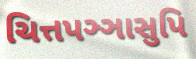
ચિત્તપઞ્ઞાસુપિ